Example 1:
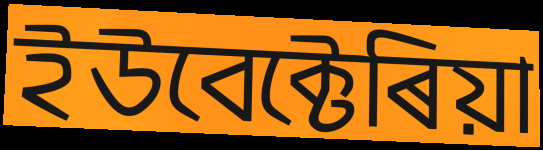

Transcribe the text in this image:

ইউবেক্টেৰিয়া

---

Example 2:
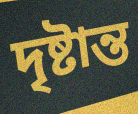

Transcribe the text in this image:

দৃষ্টান্ত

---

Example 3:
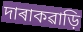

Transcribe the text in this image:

দাৰাকৱাড়ি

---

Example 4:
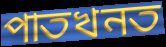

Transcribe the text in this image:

পাতখনত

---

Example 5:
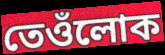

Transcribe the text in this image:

তেওঁলোক